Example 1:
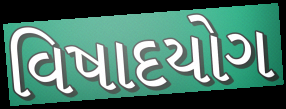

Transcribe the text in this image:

વિષાદયોગ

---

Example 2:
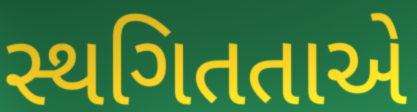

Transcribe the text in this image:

સ્થગિતતાએ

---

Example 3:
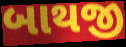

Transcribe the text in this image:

બાથજી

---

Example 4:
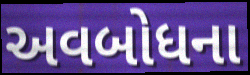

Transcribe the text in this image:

અવબોધના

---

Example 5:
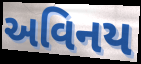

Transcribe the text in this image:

અવિનય